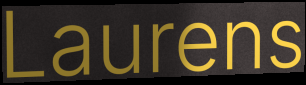
Laurens